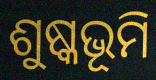
ଶୁଷ୍କଭୂମି